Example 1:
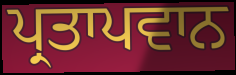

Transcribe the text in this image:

ਪ੍ਰਤਾਪਵਾਨ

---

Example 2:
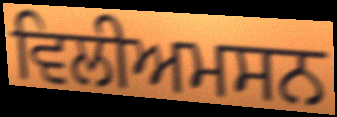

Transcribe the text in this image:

ਵਿਲੀਅਮਸਨ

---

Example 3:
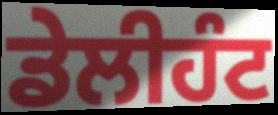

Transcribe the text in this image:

ਡੇਲੀਹੰਟ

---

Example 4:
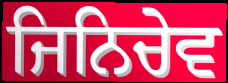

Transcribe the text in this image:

ਜਿਨਿਚੇਵ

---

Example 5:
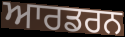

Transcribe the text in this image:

ਆਰਡਰਨ